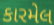
કારમેલ